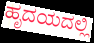
ಹೃದಯದಲ್ಲಿ